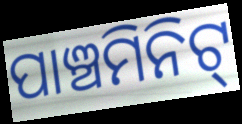
ପାଞ୍ଚମିନିଟ୍